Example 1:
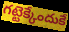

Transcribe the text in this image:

గట్టెక్కేందుకే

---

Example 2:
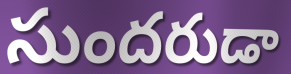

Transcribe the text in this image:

సుందరుడా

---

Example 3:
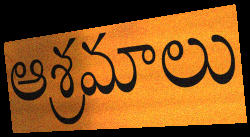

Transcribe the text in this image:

ఆశ్రమాలు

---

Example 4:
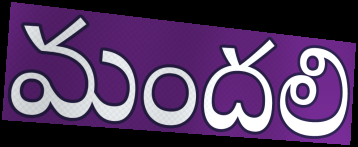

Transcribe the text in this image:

మందలి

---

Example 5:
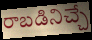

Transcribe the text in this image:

రాబడినిచ్చే